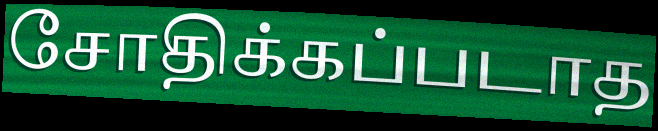
சோதிக்கப்படாத